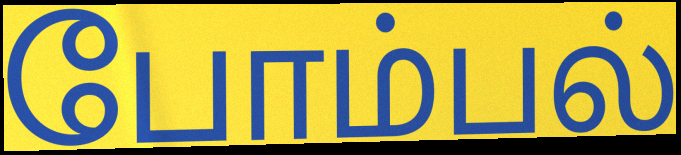
போம்பல்